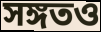
সঙ্গতও